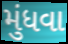
મુંધવા